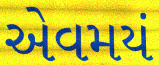
એવમયં